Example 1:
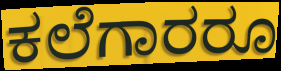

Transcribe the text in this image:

ಕಲೆಗಾರರೂ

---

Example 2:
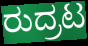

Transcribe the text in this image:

ರುದ್ರಟ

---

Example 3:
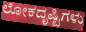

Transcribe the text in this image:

ಲೋಕದೃಷ್ಟಿಗಳು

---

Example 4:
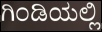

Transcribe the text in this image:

ಗಿಂಡಿಯಲ್ಲಿ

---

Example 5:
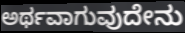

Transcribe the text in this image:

ಅರ್ಥವಾಗುವುದೇನು